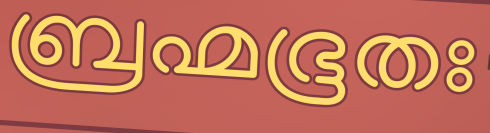
ബ്രഹ്മഭൂതഃ